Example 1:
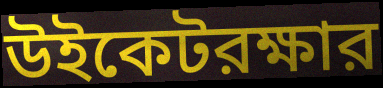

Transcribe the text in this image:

উইকেটরক্ষার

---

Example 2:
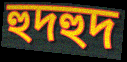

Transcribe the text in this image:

হুদহুদ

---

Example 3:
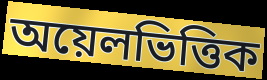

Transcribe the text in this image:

অয়েলভিত্তিক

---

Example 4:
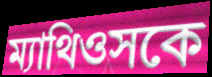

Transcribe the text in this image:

ম্যাথিওসকে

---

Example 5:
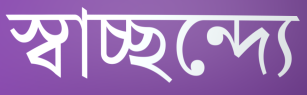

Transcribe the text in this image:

স্বাচ্ছন্দ্যে